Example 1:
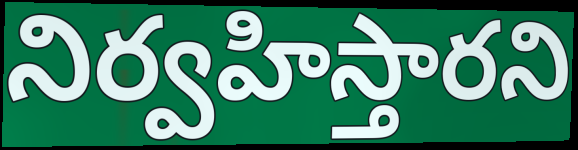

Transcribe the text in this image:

నిర్వహిస్తారని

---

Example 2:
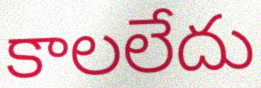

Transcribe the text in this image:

కాలలేదు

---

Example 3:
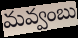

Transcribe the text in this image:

మవ్వంబు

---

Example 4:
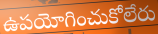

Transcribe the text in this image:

ఉపయోగించుకోలేరు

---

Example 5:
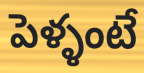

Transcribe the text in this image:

పెళ్ళంటే